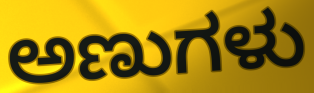
ಅಣುಗಳು